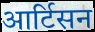
आर्टिसन